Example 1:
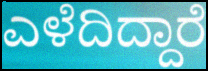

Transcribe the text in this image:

ಎಳೆದಿದ್ದಾರೆ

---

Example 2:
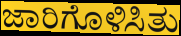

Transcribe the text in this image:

ಜಾರಿಗೊಳಿಸಿತು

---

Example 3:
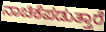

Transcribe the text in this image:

ನಾಚಿಕೆಪಡುತ್ತಾರೆ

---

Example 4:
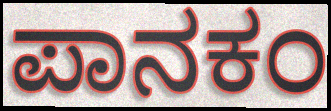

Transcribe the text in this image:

ಪಾನಕಂ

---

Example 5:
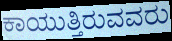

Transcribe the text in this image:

ಕಾಯುತ್ತಿರುವವರು